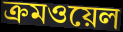
ক্রমওয়েল